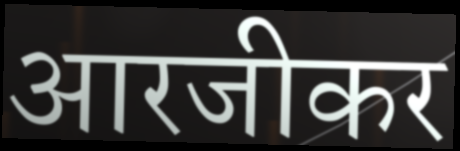
आरजीकर